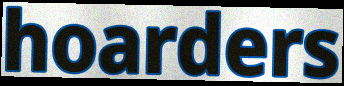
hoarders